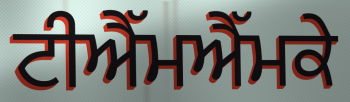
ਟੀਐੱਮਐੱਮਕੇ